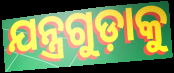
ଯନ୍ତ୍ରଗୁଡ଼ାକୁ